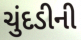
ચુંદડીની